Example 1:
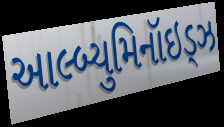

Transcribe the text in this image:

આલ્બ્યુમિનૉઇડ્ઝ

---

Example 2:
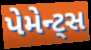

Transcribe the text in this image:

પેમેન્ટ્સ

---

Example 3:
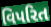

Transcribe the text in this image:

વિપરિત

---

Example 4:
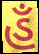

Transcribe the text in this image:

હઁ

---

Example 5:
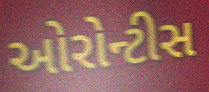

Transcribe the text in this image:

ઓરોન્ટીસ